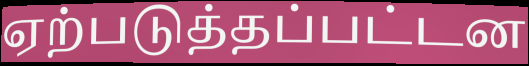
ஏற்படுத்தப்பட்டன